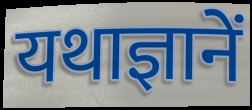
यथाज्ञानें